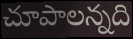
చూపాలన్నది